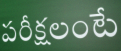
పరీక్షలంటే